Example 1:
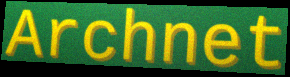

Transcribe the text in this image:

Archnet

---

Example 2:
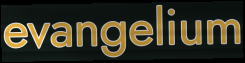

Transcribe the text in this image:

evangelium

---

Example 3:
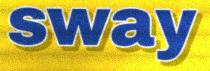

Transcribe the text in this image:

sway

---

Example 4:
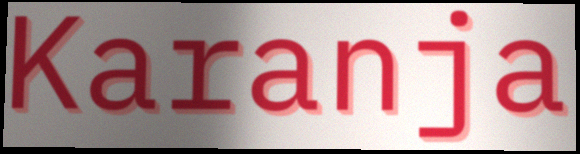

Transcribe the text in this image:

Karanja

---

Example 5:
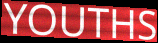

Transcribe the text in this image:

YOUTHS